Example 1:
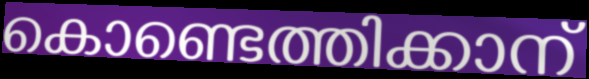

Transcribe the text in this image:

കൊണ്ടെത്തിക്കാന്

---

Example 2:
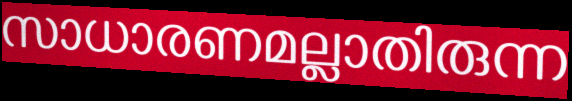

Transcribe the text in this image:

സാധാരണമല്ലാതിരുന്ന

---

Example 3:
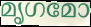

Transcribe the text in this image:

മൃഗമോ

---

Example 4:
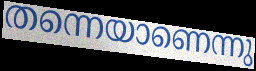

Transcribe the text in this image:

തന്നെയാണെന്നു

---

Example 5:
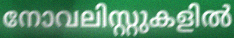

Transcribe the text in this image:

നോവലിസ്റ്റുകളിൽ